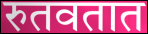
रुतवतात